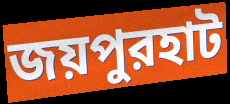
জয়পুরহাট